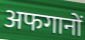
अफगानों